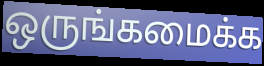
ஒருங்கமைக்க